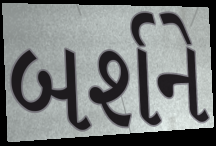
બર્શને